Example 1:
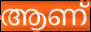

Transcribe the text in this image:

ആണ്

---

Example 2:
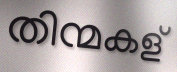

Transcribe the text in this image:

തിന്മകള്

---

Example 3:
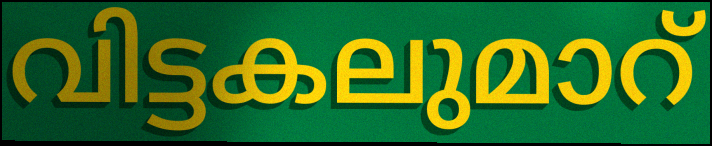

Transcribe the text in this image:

വിട്ടകലുമാറ്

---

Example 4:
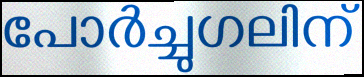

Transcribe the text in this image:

പോർച്ചുഗലിന്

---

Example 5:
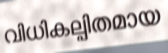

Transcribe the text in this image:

വിധികല്പിതമായ